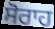
ਸੋਰਾਹ